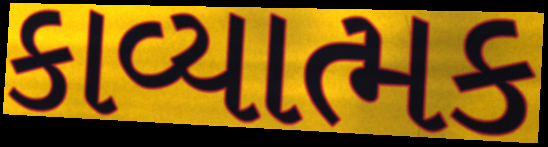
કાવ્યાત્મક